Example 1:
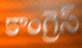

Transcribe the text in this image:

కాంగ్రెస్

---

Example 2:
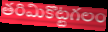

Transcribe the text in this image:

తరిమికొట్టగలం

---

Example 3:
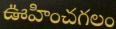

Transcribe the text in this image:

ఊహించగలం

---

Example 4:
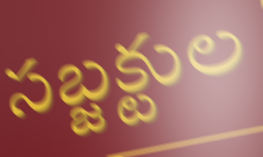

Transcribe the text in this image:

సబ్జక్టుల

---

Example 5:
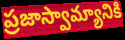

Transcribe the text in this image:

ప్రజాస్వామ్యానికి